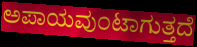
ಅಪಾಯವುಂಟಾಗುತ್ತದೆ